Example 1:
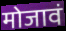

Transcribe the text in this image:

मोजावं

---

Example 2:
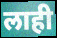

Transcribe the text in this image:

लाही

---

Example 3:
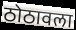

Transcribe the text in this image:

ठोठावला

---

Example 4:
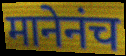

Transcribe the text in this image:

मानेनंच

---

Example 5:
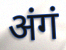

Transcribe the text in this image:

अंगं